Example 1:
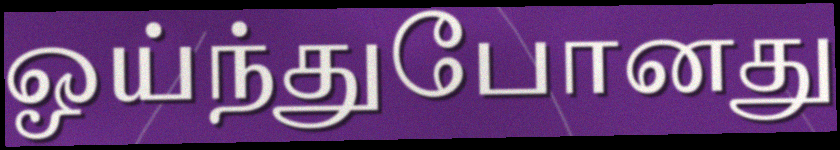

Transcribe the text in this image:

ஓய்ந்துபோனது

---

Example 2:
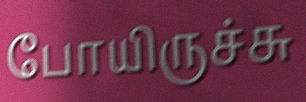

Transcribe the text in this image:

போயிருச்சு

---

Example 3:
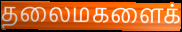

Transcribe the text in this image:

தலைமகளைக்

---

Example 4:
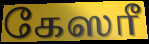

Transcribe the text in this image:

கேஸரீ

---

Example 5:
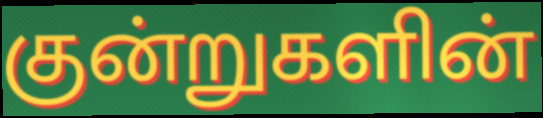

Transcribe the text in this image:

குன்றுகளின்